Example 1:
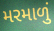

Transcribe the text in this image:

મરમાળું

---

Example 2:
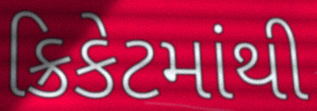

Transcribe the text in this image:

ક્રિકેટમાંથી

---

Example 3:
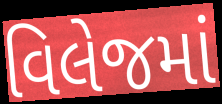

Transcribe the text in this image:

વિલેજમાં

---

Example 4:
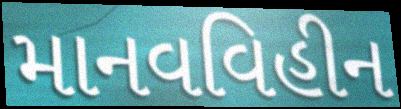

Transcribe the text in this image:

માનવવિહીન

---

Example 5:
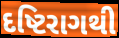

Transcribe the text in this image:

દષ્ટિરાગથી